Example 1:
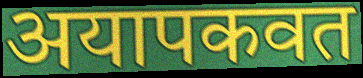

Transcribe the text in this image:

अयापकवत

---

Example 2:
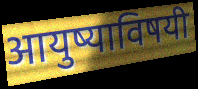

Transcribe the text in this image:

आयुष्याविषयी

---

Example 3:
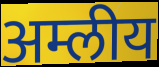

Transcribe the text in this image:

अम्‍लीय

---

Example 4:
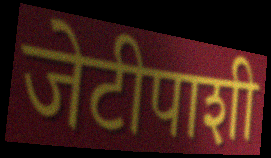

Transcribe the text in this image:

जेटीपाशी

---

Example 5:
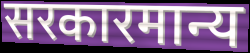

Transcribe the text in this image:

सरकारमान्य